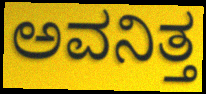
ಅವನಿತ್ತ